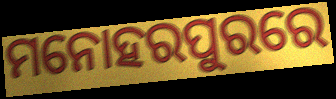
ମନୋହରପୁରରେ